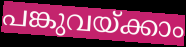
പങ്കുവയ്ക്കാം